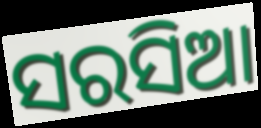
ସରସିଆ